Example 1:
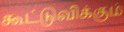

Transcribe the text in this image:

கூட்டுவிக்கும்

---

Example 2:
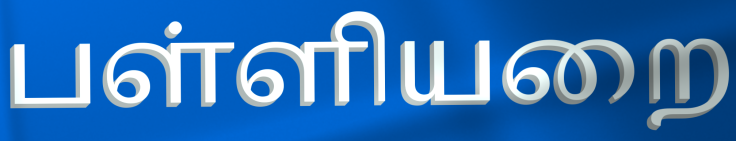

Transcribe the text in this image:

பள்ளியறை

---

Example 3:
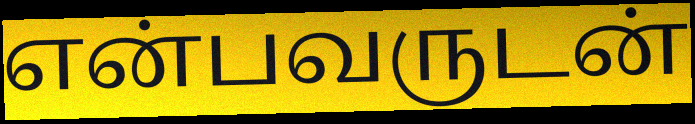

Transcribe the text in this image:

என்பவருடன்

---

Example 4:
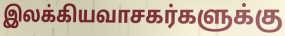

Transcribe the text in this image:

இலக்கியவாசகர்களுக்கு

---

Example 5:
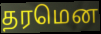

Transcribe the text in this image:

தரமென